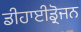
ਡੀਹਾਈਡ੍ਰੋਜਨ